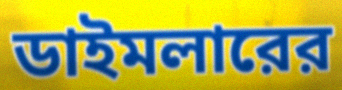
ডাইমলারের